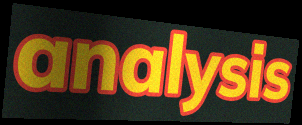
analysis